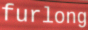
furlong